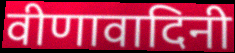
वीणावादिनी